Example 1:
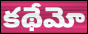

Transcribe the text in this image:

కథేమో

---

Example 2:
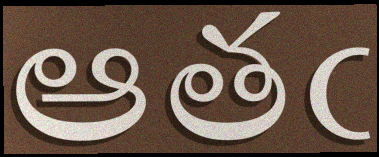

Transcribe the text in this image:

ఆతఁ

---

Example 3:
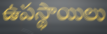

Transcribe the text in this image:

ఉపస్థాయిలు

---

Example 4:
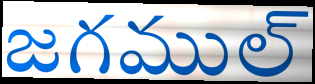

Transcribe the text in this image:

జగముల్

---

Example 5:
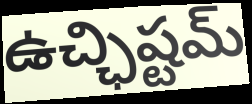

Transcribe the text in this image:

ఉచ్ఛిష్టమ్